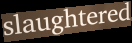
slaughtered